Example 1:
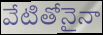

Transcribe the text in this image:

వేటితోనైనా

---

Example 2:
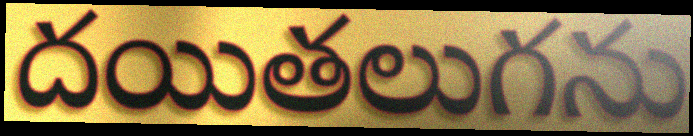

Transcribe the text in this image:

దయితలుగను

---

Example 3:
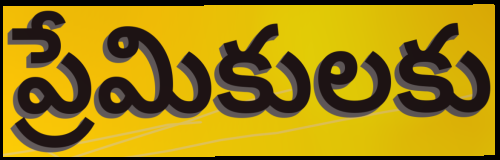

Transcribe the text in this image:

ప్రేమికులకు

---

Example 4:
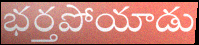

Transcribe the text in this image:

భర్తపోయాడు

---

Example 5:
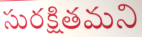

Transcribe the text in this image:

సురక్షితమని